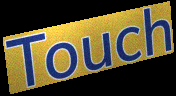
Touch